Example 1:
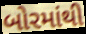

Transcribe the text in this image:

બોરમાંથી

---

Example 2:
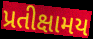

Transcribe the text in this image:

પ્રતીક્ષામય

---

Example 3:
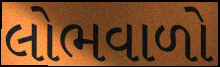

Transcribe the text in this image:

લોભવાળો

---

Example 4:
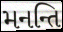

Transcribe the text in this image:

મનન્તિ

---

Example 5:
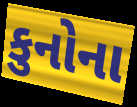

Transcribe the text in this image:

કુનોના